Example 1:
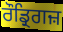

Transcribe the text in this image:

ਰੌਡ੍ਰਿਗਜ਼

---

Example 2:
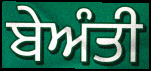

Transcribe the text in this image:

ਬੇਅੰਤੀ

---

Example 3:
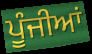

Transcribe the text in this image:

ਪੂੰਜੀਆਂ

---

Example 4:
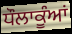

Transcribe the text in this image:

ਧੌਲਾਕੂੰਆਂ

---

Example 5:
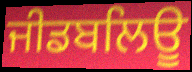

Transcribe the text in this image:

ਜੀਡਬਲਿਊ